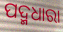
ପଦ୍ମଧାରା